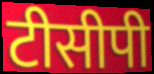
टीसीपी